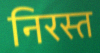
निरस्त